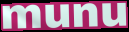
munu